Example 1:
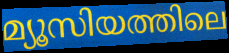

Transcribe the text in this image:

മ്യൂസിയത്തിലെ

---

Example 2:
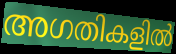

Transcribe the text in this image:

അഗതികളിൽ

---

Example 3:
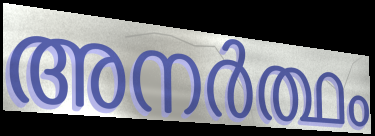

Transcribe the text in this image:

അനർത്ഥം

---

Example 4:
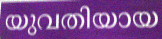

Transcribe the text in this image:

യുവതിയായ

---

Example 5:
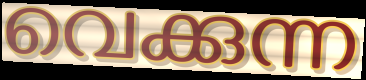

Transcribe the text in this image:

വെക്കുന്ന